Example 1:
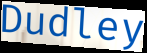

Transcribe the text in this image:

Dudley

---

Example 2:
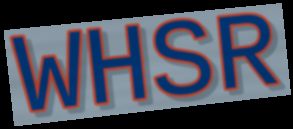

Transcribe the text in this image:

WHSR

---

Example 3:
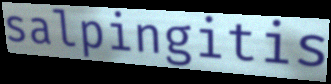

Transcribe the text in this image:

salpingitis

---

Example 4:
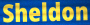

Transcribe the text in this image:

Sheldon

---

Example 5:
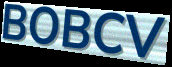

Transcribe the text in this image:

BOBCV